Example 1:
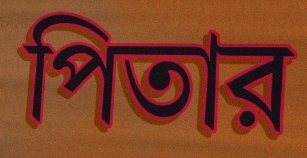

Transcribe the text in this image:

পিতার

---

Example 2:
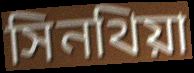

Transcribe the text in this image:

সিনথিয়া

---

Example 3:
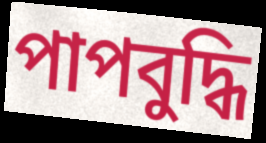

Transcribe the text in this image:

পাপবুদ্ধি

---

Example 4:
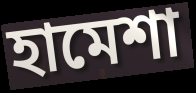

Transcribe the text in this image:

হামেশা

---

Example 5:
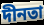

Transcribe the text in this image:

দীনতা